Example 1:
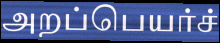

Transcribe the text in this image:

அறப்பெயர்ச்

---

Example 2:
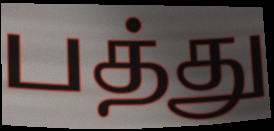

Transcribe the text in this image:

பத்து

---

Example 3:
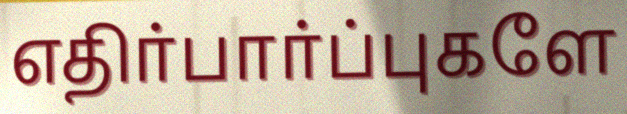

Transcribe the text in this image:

எதிர்பார்ப்புகளே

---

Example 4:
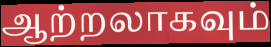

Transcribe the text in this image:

ஆற்றலாகவும்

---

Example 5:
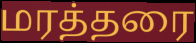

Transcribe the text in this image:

மரத்தரை